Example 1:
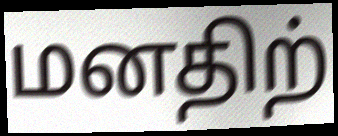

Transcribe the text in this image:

மனதிற்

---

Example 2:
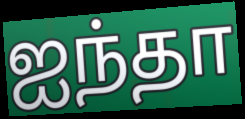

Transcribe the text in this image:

ஐந்தா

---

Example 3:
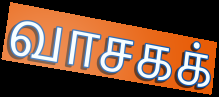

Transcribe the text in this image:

வாசகக்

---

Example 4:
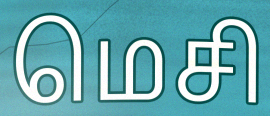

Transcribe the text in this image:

மெசி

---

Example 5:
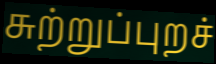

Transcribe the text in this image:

சுற்றுப்புறச்